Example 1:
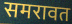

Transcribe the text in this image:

समरावत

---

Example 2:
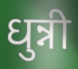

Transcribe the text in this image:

धुन्नी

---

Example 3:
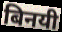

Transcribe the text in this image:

बिनयी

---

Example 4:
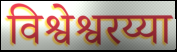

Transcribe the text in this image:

विश्वेश्वरय्या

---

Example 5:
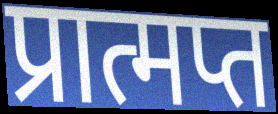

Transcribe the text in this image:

प्रात्मप्त